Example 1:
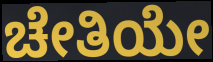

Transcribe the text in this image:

ಚೇತಿಯೇ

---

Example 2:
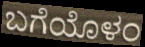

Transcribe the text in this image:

ಬಗೆಯೊಳಂ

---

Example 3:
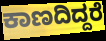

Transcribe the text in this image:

ಕಾಣದಿದ್ದರೆ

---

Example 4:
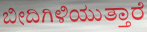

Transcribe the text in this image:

ಬೀದಿಗಿಳಿಯುತ್ತಾರೆ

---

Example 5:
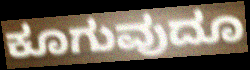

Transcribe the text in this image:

ಕೂಗುವುದೂ